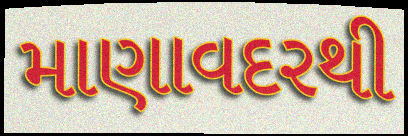
માણાવદરથી